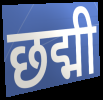
छद्मी